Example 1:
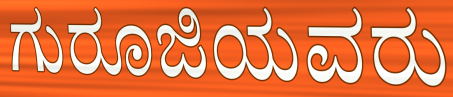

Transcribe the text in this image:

ಗುರೂಜಿಯವರು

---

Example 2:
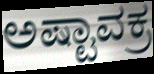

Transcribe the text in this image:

ಅಷ್ಟಾವಕ್ರ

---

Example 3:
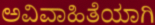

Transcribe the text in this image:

ಅವಿವಾಹಿತೆಯಾಗಿ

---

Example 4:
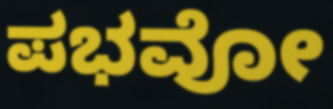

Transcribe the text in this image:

ಪಭವೋ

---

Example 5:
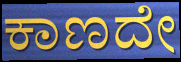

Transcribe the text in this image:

ಕಾಣದೇ